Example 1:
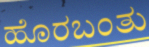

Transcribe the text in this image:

ಹೊರಬಂತು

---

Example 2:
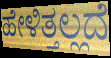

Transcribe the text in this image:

ಹೇಳಿತ್ತಲ್ಲದೆ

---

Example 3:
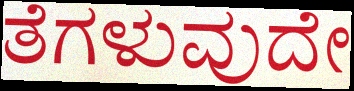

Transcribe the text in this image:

ತೆಗಳುವುದೇ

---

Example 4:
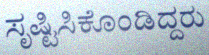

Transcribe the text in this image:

ಸೃಷ್ಟಿಸಿಕೊಂಡಿದ್ದರು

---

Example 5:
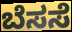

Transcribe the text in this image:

ಬೆಸಸೆ